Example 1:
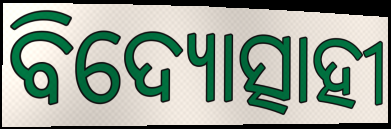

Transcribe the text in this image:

ବିଦ୍ୟୋତ୍ସାହୀ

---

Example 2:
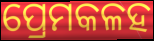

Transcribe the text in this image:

ପ୍ରେମକଳହ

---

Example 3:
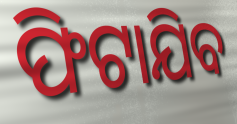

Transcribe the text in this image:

ଫିଟାଯିବ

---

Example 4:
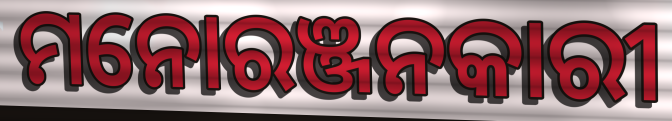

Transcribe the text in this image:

ମନୋରଞ୍ଜନକାରୀ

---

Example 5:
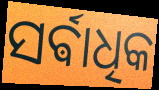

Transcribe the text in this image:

ସର୍ଵାଧିକ